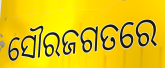
ସୌରଜଗତରେ